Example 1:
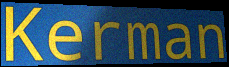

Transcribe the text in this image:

Kerman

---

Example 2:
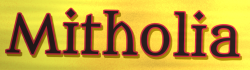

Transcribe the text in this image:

Mitholia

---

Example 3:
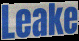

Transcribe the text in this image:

Leake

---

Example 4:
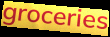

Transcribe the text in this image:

groceries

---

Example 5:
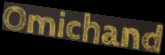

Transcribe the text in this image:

Omichand